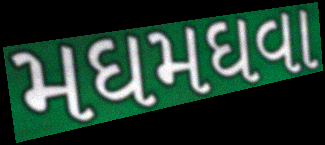
મઘમઘવા